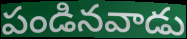
పండినవాడు